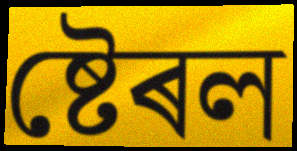
ষ্টেৰল